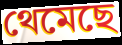
থেমেছে